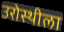
उरोस्थीला